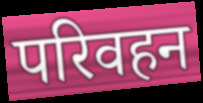
परिवहन